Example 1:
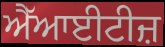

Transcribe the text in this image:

ਐੱਆਈਟੀਜ਼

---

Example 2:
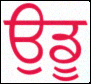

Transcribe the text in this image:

ਉਡੂ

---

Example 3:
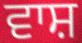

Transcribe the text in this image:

ਵਾਸ਼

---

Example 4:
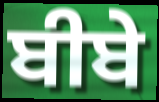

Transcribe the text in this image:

ਬੀਬੇ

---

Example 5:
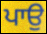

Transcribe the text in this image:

ਪਾਉ